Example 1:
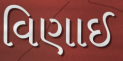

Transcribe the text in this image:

વિણાઈ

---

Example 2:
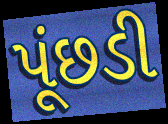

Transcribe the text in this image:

પૂંછડી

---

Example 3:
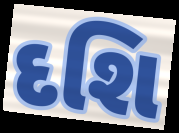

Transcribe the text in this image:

દશિ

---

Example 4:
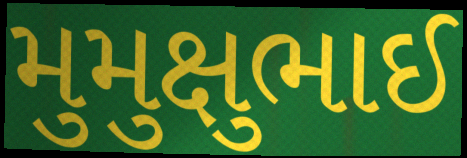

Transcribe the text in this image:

મુમુક્ષુભાઈ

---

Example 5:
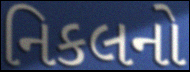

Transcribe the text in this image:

નિકલનો